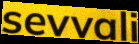
sevvali